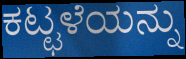
ಕಟ್ಟಳೆಯನ್ನು